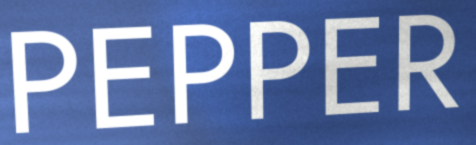
PEPPER